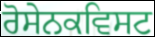
ਰੋਸੇਨਕਵਿਸਟ